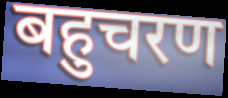
बहुचरण